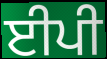
ਈਪੀ